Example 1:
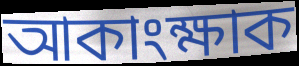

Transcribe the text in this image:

আকাংক্ষাক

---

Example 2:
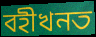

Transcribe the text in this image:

বহীখনত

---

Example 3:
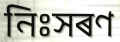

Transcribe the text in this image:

নিঃসৰণ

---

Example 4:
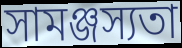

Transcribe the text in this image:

সামঞ্জস্যতা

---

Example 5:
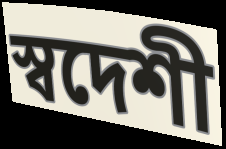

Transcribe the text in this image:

স্বদেশী